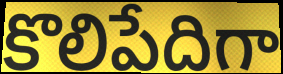
కొలిపేదిగా